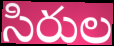
సిరుల